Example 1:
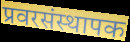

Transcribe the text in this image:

प्रवरसंस्थापक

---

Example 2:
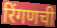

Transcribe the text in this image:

रिंगणची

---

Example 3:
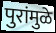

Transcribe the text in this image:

पुरांमुळे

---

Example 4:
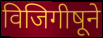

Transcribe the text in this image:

विजिगीषूने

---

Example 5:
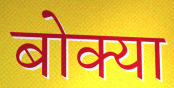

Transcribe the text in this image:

बोक्या